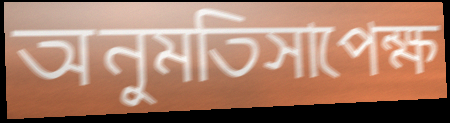
অনুমতিসাপেক্ষ